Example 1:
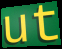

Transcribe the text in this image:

ut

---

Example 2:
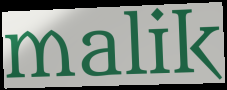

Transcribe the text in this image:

malik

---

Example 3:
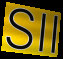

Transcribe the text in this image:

SII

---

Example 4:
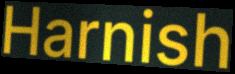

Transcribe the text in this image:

Harnish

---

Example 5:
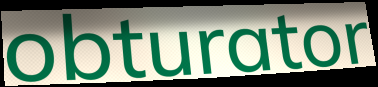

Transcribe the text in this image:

obturator